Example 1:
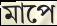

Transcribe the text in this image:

মাপে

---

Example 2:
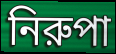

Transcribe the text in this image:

নিরুপা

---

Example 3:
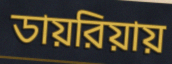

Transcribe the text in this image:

ডায়রিয়ায়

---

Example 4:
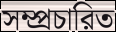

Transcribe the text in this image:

সম্প্রচারিত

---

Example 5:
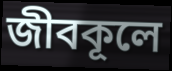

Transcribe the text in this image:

জীবকূলে